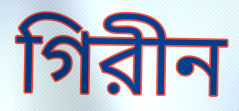
গিরীন